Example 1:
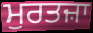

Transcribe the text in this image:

ਮੁਰਤਜ਼ਾ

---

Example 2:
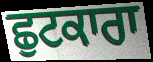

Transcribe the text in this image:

ਛੁਟਕਾਰਾ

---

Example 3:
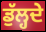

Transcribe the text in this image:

ਡੁੱਲ੍ਹਦੇ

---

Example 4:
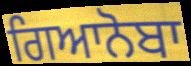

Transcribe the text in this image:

ਗਿਆਨੋਬਾ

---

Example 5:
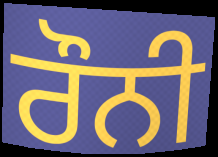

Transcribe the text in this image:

ਰੌਨੀ